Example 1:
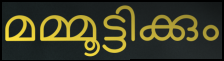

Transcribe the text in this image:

മമ്മൂട്ടിക്കും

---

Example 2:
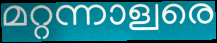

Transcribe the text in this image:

മറ്റന്നാള്വരെ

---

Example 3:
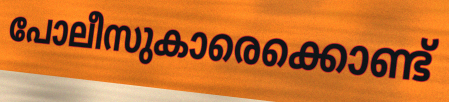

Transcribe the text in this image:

പോലീസുകാരെക്കൊണ്ട്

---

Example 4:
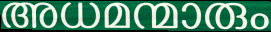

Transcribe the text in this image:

അധമന്മാരും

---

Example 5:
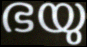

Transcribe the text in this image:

ഭയു